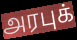
அரபுக்